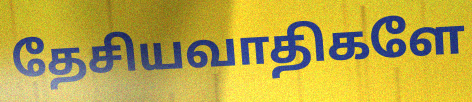
தேசியவாதிகளே